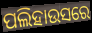
ପଲିହାଉସରେ